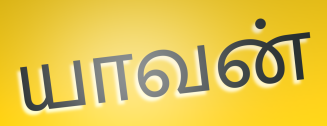
யாவன்